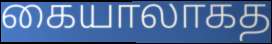
கையாலாகத